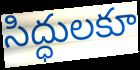
సిద్ధులకూ